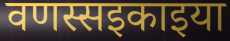
वणस्सइकाइया